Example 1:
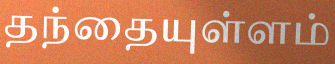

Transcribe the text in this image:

தந்தையுள்ளம்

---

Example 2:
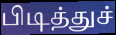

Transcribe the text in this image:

பிடித்துச்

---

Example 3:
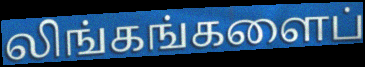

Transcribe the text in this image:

லிங்கங்களைப்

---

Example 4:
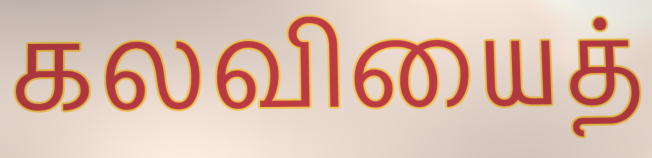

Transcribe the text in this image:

கலவியைத்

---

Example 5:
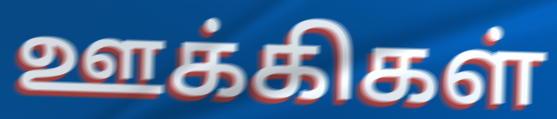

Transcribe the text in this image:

ஊக்கிகள்